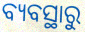
ବ୍ୟବସ୍ଥାରୁ